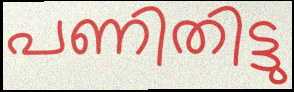
പണിതിട്ടു